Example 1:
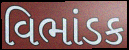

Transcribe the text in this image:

વિભાંડક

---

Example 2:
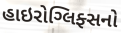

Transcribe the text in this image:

હાઇરોગ્લિફ્સનો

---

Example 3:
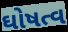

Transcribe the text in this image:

ઘોષત્વ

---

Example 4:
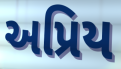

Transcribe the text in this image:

અપ્રિય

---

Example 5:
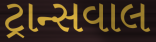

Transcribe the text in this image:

ટ્રાન્સવાલ